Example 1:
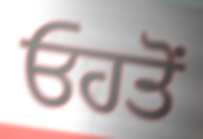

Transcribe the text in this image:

ਓਹਤੋਂ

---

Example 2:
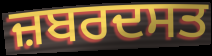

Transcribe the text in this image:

ਜ਼ਬਰਦਸਤ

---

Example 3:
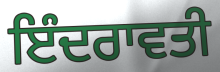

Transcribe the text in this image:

ਇੰਦਰਾਵਤੀ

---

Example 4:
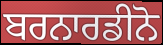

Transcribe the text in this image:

ਬਰਨਾਰਡੀਨੋ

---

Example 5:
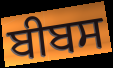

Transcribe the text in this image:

ਬੀਬਸ